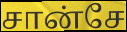
சான்சே